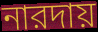
নারদায়